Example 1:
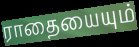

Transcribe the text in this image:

ராதையையும்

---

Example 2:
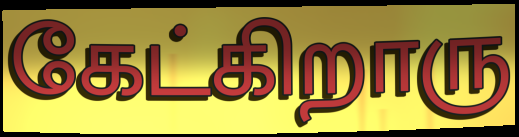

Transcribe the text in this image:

கேட்கிறாரு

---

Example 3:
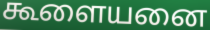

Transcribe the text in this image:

கூளையனை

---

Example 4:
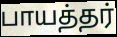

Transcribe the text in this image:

பாயத்தர்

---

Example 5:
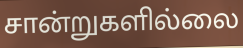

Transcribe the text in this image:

சான்றுகளில்லை